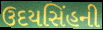
ઉદયસિંહની